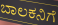
ಬಾಲಕನಿಗೆ